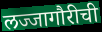
लज्जागौरीची